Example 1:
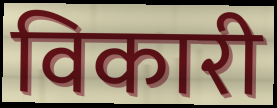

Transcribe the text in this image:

विकारी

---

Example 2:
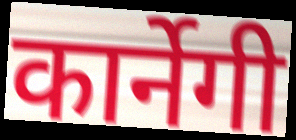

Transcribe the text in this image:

कार्नेगी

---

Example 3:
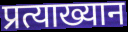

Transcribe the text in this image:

प्रत्याख्यान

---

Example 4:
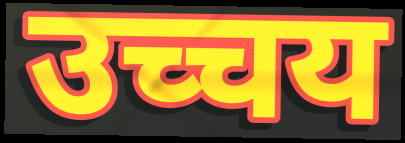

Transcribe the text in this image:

उच्चय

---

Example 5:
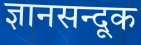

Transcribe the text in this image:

ज्ञानसन्दूक